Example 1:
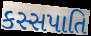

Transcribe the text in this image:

કસ્સપાતિ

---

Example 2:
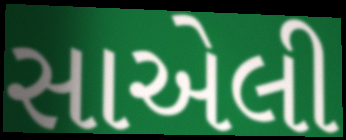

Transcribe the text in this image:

સાએલી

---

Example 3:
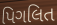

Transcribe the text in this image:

પિગલિત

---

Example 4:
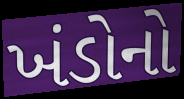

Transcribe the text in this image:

ખંડોનો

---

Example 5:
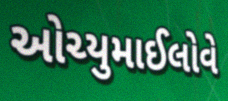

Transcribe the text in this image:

ઓચ્યુમાઈલોવે